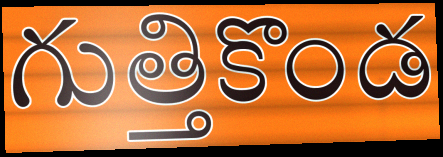
గుత్తికొండ